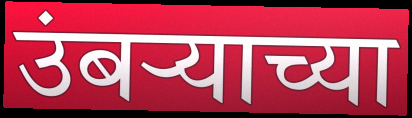
उंबऱ्याच्या